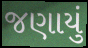
જણાયું